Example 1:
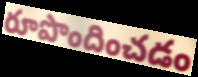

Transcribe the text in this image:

రూపొందించడం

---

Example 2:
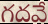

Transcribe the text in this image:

గదవే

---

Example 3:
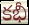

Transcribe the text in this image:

కభీ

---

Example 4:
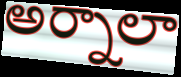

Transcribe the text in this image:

అర్నాలా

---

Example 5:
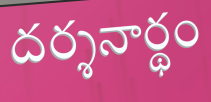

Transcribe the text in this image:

దర్శనార్థం